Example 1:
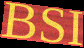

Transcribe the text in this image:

BSI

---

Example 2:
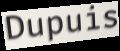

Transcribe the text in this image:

Dupuis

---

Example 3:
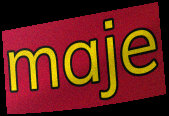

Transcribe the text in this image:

maje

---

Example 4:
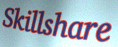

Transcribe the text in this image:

Skillshare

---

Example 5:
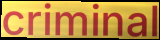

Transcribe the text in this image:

criminal